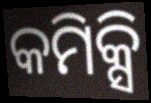
କମିକ୍ସି